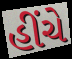
હીંચે